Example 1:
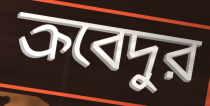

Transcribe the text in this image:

ক্রবেদুর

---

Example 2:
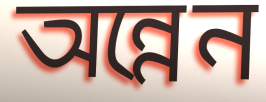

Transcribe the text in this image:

অন্নেন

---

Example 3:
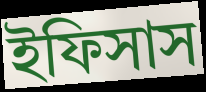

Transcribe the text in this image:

ইফিসাস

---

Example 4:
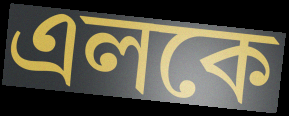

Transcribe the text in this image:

এলকে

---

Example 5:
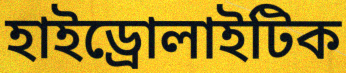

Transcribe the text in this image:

হাইড্রোলাইটিক